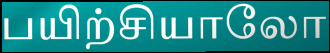
பயிற்சியாலோ